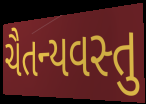
ચૈતન્યવસ્તુ